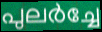
പുലർച്ചേ